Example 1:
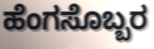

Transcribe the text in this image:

ಹೆಂಗಸೊಬ್ಬರ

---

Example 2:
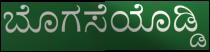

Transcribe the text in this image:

ಬೊಗಸೆಯೊಡ್ಡಿ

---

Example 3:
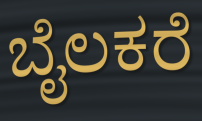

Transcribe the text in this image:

ಬೈಲಕರೆ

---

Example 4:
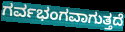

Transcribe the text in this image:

ಗರ್ವಭಂಗವಾಗುತ್ತದೆ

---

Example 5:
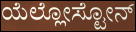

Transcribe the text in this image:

ಯೆಲ್ಲೋಸ್ಟೋನ್